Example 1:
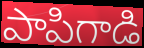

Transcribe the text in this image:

పాపిగాడి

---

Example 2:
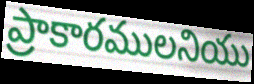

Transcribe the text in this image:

ప్రాకారములనియు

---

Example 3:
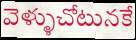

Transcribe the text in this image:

వెళ్ళుచోటునకే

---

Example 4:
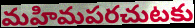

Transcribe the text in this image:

మహిమపరచుటకు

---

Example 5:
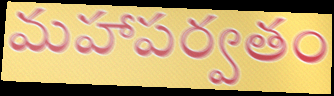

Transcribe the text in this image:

మహాపర్వతం